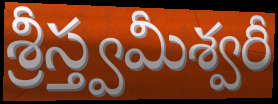
శ్రీస్త్వమీశ్వరీ